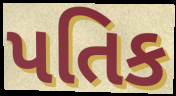
પતિક